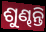
ଶୁଣ୍ଢନ୍ତି